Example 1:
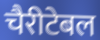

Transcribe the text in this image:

चैरीटेबल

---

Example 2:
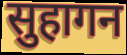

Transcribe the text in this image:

सुहागन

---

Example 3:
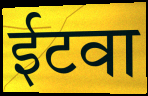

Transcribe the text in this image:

ईटवा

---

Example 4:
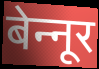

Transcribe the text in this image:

बेन्नूर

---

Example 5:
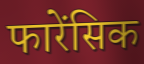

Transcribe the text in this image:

फारेंसिक